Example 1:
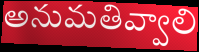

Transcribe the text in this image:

అనుమతివ్వాలి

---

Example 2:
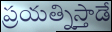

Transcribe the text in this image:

ప్రయత్నిస్తాడే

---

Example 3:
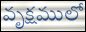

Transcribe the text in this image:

వృక్షములో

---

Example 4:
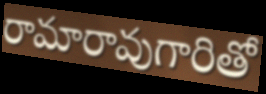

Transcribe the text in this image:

రామారావుగారితో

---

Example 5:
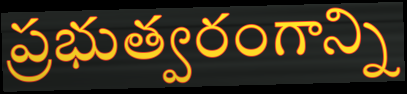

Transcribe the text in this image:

ప్రభుత్వరంగాన్ని